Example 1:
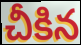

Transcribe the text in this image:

చీకిన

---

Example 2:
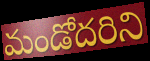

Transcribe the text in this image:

మండోదరిని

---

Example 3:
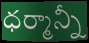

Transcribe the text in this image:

ధర్మాన్నీ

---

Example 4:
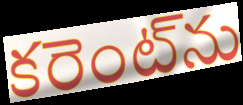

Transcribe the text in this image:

కరెంట్‌ను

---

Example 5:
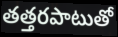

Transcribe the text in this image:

తత్తరపాటుతో